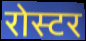
रोस्टर